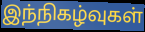
இந்நிகழ்வுகள்